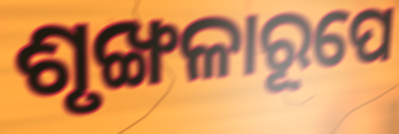
ଶୃଙ୍ଖଳାରୂପେ